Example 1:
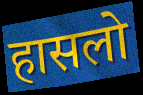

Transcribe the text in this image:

हासलो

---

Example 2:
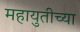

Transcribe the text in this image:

महायुतीच्या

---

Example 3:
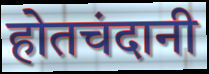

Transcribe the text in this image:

होतचंदानी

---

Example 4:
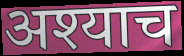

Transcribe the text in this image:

अश्याच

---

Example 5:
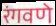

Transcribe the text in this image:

रंगवणे